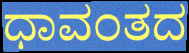
ಧಾವಂತದ